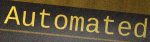
Automated